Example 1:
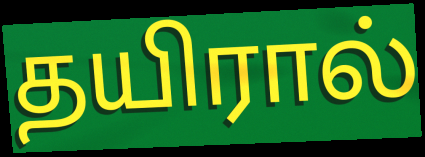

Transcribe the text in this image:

தயிரால்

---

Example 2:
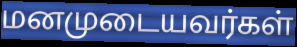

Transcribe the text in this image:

மனமுடையவர்கள்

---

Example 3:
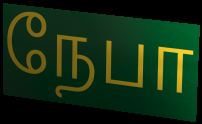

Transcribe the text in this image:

நேபா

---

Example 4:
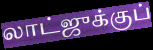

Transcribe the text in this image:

லாட்ஜுக்குப்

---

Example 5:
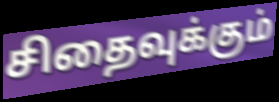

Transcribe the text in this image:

சிதைவுக்கும்